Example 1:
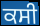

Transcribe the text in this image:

ਕਸੀ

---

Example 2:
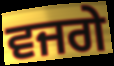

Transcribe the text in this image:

ਵਜਗੇ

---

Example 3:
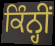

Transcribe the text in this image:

ਕਿੰਨ੍ਹੀਂ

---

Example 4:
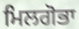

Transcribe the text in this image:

ਮਿਲਗੋਭਾ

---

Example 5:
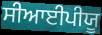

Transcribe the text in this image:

ਸੀਆਈਪੀਯੂ